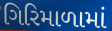
ગિરિમાળામાં